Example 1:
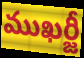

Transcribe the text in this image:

ముఖర్జీ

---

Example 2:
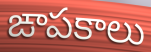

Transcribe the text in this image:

ఙాపకాలు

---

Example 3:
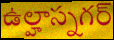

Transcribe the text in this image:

ఉల్హాస్నగర్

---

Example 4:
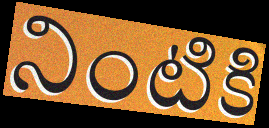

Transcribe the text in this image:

నింటికి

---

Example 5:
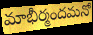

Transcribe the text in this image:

మాభీర్మందమనో